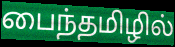
பைந்தமிழில்